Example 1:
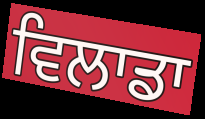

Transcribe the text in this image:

ਵਿਲਾਡਾ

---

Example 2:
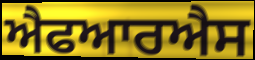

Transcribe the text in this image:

ਐਫਆਰਐਸ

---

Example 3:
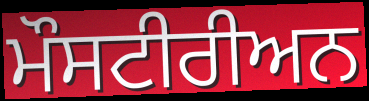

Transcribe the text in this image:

ਮੌਸਟੀਰੀਅਨ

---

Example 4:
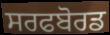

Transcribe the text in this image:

ਸਰਫਬੋਰਡ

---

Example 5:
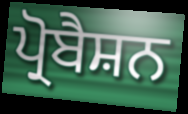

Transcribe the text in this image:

ਪ੍ਰੋਬੈਸ਼ਨ